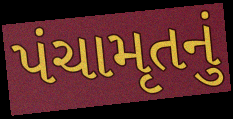
પંચામૃતનું